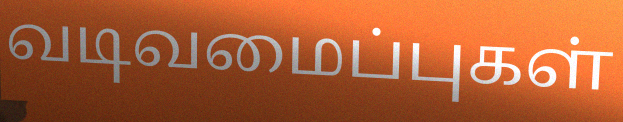
வடிவமைப்புகள்